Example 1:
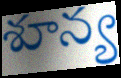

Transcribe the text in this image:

శూన్య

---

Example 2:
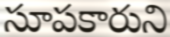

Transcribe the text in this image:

సూపకారుని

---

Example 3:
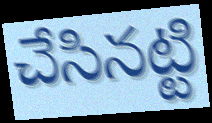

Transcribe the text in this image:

చేసినట్టి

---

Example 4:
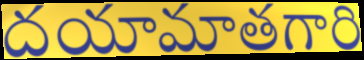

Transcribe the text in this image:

దయామాతగారి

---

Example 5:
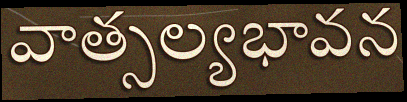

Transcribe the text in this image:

వాత్సల్యభావన